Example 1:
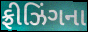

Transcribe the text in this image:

ફ્રીઝિંગના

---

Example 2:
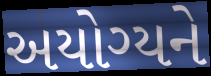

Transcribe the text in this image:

અયોગ્યને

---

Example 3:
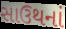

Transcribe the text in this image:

સાઉથનાં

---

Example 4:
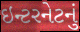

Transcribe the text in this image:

ઇન્ટરનેટનું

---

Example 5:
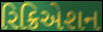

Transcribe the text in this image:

રિક્રિએશન